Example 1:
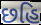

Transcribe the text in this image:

છહિ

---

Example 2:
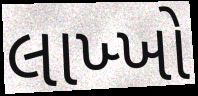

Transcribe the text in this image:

લાખ્ખો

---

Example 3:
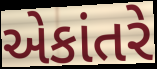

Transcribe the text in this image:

એકાંતરે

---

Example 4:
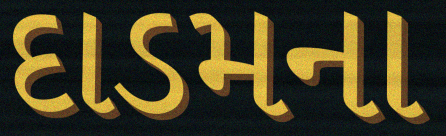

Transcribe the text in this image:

દાડમના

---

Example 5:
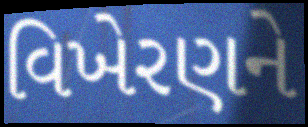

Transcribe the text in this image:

વિખેરણને